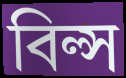
বিল্স